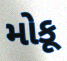
મોકૂ